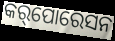
କର୍‌ପୋରେସନ